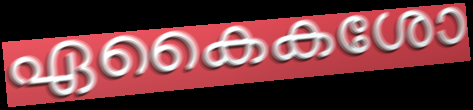
ഏകൈകശോ